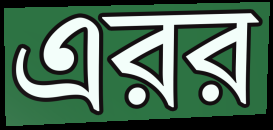
এরর